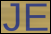
JE